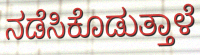
ನಡೆಸಿಕೊಡುತ್ತಾಳೆ